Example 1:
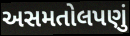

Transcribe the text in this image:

અસમતોલપણું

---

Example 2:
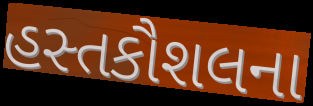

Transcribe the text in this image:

હસ્તકૌશલના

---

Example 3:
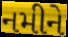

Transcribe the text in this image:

નમીને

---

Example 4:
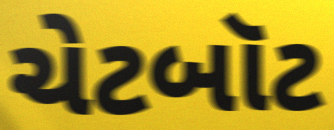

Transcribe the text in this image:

ચેટબૉટ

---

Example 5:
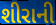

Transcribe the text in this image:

શીરાની